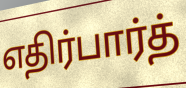
எதிர்பார்த்